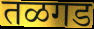
तळगड